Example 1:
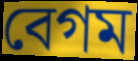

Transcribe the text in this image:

বেগম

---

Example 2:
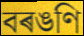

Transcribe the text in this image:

বৰঙণি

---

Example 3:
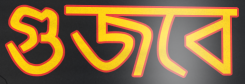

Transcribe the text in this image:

গুজবে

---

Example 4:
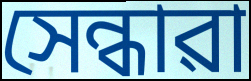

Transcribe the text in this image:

সেন্ধাৱা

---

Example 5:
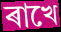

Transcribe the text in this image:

ৰাখে